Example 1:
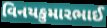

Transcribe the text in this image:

વિનયકુમારભાઈ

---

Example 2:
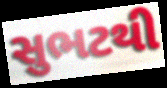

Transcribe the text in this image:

સુભટથી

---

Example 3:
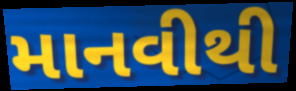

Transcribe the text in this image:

માનવીથી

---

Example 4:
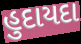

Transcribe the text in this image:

હુદાયદા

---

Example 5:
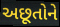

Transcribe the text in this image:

અછૂતોને